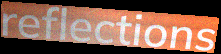
reflections